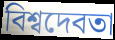
বিশ্বদেবতা